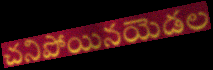
చనిపోయినయెడల